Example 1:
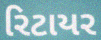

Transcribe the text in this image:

રિટાયર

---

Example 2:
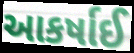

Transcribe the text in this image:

આકર્ષાઈ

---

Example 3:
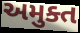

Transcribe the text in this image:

અમુક્ત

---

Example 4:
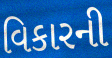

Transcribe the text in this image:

વિકારની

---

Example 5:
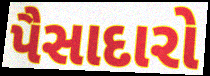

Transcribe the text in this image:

પૈસાદારો